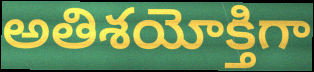
అతిశయోక్తిగా